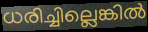
ധരിച്ചില്ലെങ്കിൽ